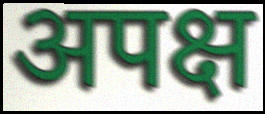
अपक्ष